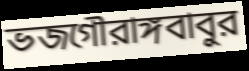
ভজগৌরাঙ্গবাবুর